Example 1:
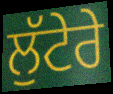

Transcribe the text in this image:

ਲੁੱਟੇਰੇ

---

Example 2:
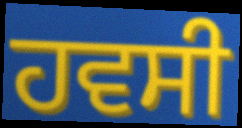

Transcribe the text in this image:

ਹਵਸੀ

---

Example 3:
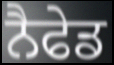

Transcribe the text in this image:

ਨੈਫੇਡ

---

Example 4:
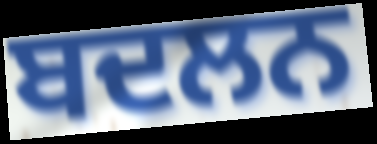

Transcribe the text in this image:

ਬਦਲਨ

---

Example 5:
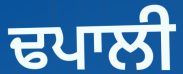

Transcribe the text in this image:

ਢਪਾਲੀ